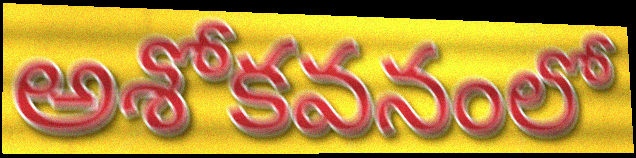
అశోకవనంలో